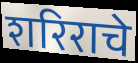
शरिराचे